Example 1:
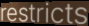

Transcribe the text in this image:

restricts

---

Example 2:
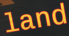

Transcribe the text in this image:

land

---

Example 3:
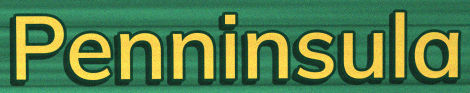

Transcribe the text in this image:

Penninsula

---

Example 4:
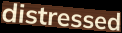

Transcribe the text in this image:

distressed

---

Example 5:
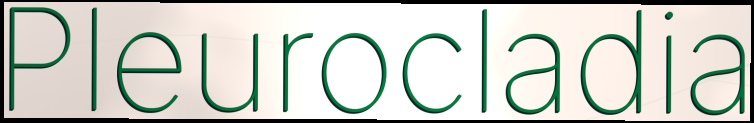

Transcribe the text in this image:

Pleurocladia